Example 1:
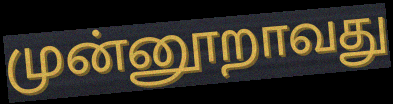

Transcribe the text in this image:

முன்னூறாவது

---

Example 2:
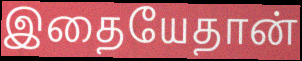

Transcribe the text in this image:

இதையேதான்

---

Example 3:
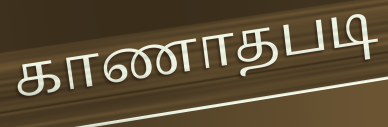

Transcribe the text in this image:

காணாதபடி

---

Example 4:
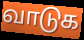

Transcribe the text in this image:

வாடுக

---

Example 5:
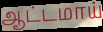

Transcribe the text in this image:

ஆட்டமாய்